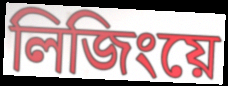
লিজিংয়ে